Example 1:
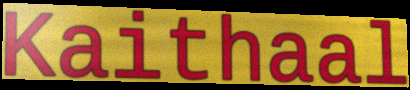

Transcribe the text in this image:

Kaithaal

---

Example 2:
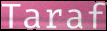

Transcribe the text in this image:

Taraf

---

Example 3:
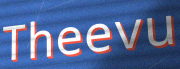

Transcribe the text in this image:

Theevu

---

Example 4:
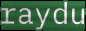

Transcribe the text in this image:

raydu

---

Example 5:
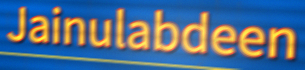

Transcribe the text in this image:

Jainulabdeen